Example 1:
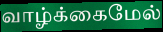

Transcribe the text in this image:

வாழ்க்கைமேல்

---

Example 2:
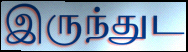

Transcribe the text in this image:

இருந்துட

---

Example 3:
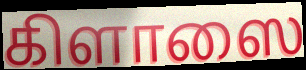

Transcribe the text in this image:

கிளாஸை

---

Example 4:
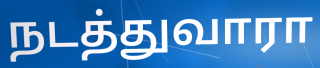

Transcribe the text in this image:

நடத்துவாரா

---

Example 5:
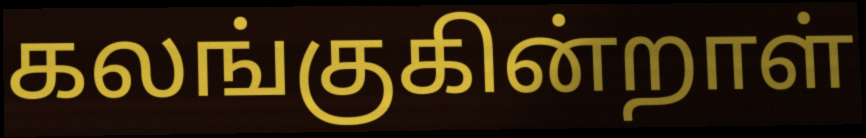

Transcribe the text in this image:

கலங்குகின்றாள்